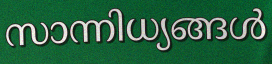
സാന്നിധ്യങ്ങൾ